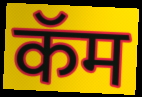
कॅम